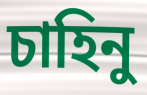
চাহিনু